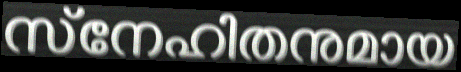
സ്‌നേഹിതനുമായ